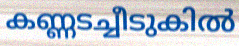
കണ്ണടച്ചീടുകിൽ